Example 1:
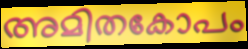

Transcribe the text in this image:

അമിതകോപം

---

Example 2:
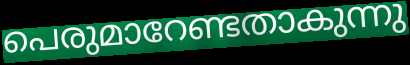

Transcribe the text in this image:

പെരുമാറേണ്ടതാകുന്നു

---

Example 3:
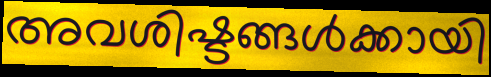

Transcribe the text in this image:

അവശിഷ്ടങ്ങൾക്കായി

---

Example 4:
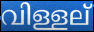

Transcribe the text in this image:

വിള്ളല്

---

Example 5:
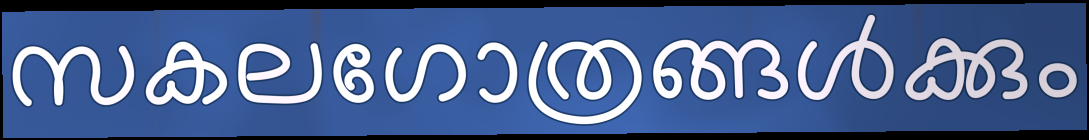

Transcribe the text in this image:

സകലഗോത്രങ്ങൾക്കും